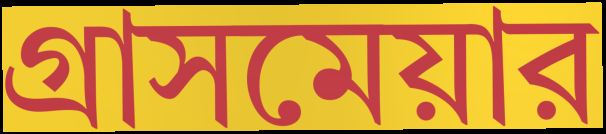
গ্রাসমেয়ার